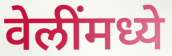
वेलींमध्ये